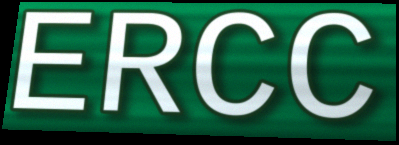
ERCC